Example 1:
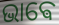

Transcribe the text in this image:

ଭାଵେ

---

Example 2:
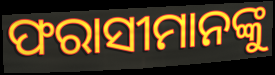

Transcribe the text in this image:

ଫରାସୀମାନଙ୍କୁ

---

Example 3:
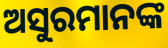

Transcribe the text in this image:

ଅସୁରମାନଙ୍କ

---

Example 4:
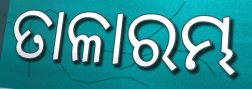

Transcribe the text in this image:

ତାଳାରମ୍ଭ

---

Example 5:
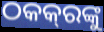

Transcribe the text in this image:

ଠକକ୍‌ରଙ୍କୁ